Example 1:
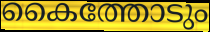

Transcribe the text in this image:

കൈത്തോടും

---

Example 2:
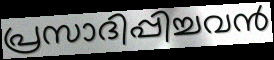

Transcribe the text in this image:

പ്രസാദിപ്പിച്ചവൻ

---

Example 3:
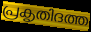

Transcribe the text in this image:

പ്രകൃതിദത്ത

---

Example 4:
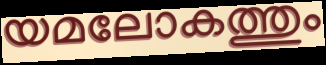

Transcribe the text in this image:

യമലോകത്തും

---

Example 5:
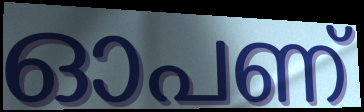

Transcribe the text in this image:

ഓപണ്